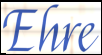
Ehre